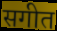
सगीत